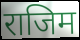
राजिम